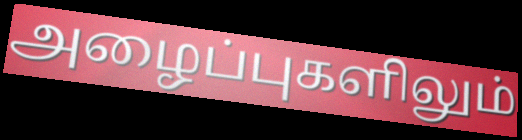
அழைப்புகளிலும்